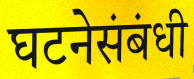
घटनेसंबंधी